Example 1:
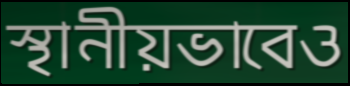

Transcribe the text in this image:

স্থানীয়ভাবেও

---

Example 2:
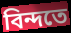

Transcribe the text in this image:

বিন্দতে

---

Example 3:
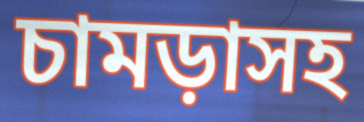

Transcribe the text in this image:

চামড়াসহ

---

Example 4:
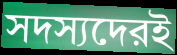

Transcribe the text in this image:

সদস্যদেরই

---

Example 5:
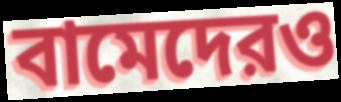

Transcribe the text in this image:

বামেদেরও